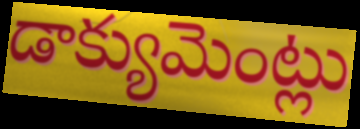
డాక్యుమెంట్లు